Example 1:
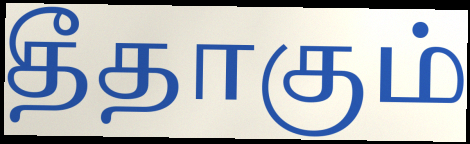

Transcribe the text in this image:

தீதாகும்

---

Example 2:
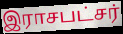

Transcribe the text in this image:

இராசபட்சர்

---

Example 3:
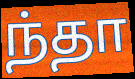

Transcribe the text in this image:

ந்தா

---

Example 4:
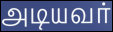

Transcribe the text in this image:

அடியவர்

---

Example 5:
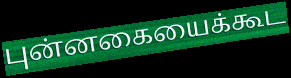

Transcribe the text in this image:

புன்னகையைக்கூட